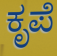
ಕೃಪೆ